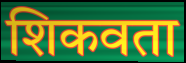
शिकवता